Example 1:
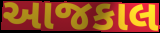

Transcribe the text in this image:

આજકાલ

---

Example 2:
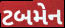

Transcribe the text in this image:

ટબમેન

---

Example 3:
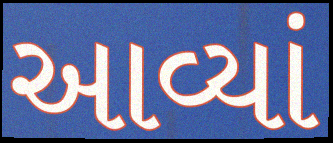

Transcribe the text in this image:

આવ્યાં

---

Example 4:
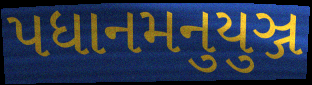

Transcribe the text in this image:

પધાનમનુયુઞ્જ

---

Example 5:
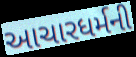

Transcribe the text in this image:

આચારધર્મની